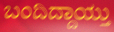
ಬಂದಿದ್ದಾಯ್ತು